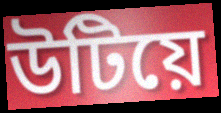
উটিয়ে